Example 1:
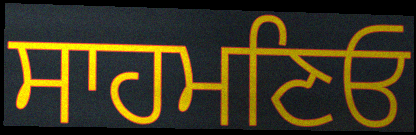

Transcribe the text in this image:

ਸਾਹਮਣਿਓ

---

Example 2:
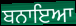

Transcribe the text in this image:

ਬਨਾਇਆ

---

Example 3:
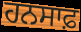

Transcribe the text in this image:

ਹਨਸਾਫ਼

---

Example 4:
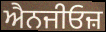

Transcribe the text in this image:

ਐਨਜੀਓਜ਼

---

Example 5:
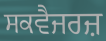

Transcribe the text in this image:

ਸਕਵੈਜਰਜ਼